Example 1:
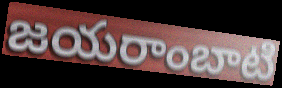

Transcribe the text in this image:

జయరాంబాటి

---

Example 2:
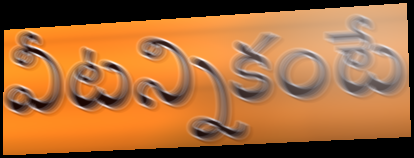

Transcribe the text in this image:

వీటన్నికంటే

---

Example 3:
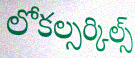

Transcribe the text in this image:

లోకల్సర్కిల్స్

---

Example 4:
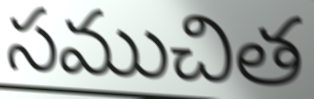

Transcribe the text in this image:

సముచిత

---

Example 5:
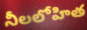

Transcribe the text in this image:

నీలలోహిత